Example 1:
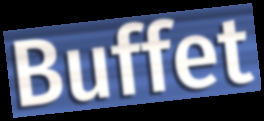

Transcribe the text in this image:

Buffet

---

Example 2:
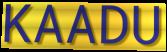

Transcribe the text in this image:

KAADU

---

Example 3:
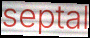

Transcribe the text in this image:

septal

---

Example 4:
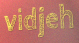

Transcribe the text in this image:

vidjeh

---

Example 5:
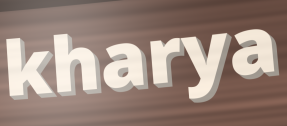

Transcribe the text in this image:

kharya